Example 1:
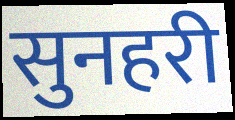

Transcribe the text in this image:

सुनहरी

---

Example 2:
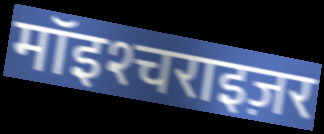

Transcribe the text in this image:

मॉइश्चराइज़र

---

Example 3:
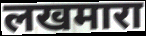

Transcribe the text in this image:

लखमारा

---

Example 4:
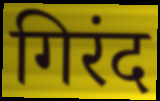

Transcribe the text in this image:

गिरंद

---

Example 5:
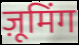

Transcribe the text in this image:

ज़ूमिंग